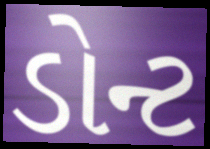
ડોન્ટ